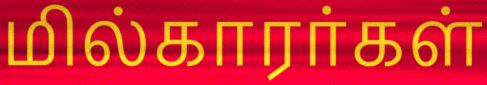
மில்காரர்கள்